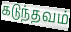
கடுந்தவம்